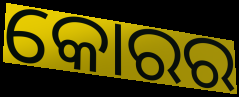
କୋରର